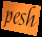
pesh